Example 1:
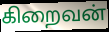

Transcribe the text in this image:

கிறைவன்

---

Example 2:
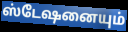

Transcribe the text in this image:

ஸ்டேஷனையும்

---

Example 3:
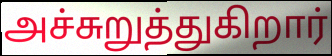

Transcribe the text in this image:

அச்சுறுத்துகிறார்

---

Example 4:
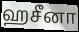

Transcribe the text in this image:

ஹசீனா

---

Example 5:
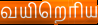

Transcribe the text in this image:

வயிறெரிய